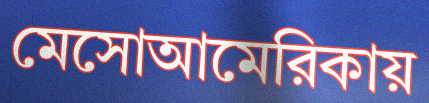
মেসোআমেরিকায়